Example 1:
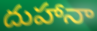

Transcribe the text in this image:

దుహానా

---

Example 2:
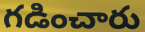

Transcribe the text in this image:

గడించారు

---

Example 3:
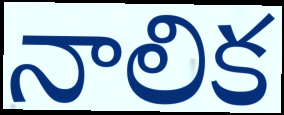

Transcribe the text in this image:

నాలిక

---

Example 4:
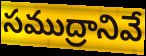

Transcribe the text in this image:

సముద్రానివే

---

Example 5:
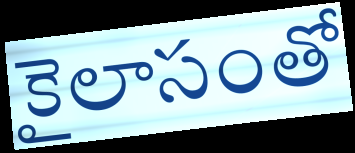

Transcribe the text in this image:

కైలాసంతో